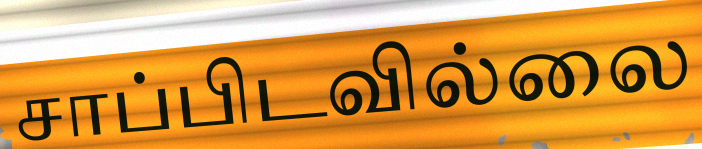
சாப்பிடவில்லை